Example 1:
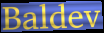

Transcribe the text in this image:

Baldev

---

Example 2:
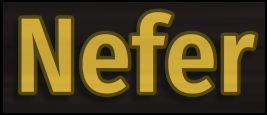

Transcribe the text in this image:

Nefer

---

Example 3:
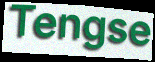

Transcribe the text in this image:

Tengse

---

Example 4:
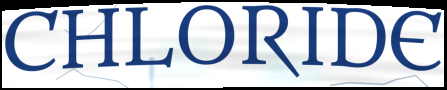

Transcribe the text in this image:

CHLORIDE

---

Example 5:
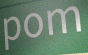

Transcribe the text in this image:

pom